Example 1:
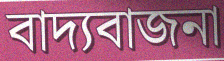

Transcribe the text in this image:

বাদ্যবাজনা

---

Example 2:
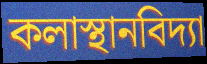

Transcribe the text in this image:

কলাস্থানবিদ্যা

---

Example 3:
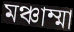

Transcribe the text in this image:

মঞ্চাম্মা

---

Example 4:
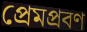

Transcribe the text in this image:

প্রেমপ্রবণ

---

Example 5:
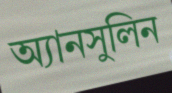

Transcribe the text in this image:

অ্যানসুলিন